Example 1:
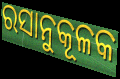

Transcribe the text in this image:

ରସାନୁକୂଳକ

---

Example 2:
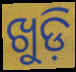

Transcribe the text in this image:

ଖୁଡ଼ି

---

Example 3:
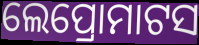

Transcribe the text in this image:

ଲେପ୍ରୋମାଟସ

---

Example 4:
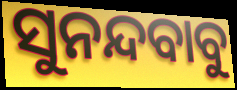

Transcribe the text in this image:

ସୁନନ୍ଦବାବୁ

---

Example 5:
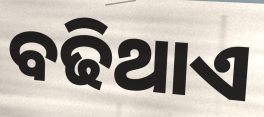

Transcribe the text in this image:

ବଢିଥାଏ